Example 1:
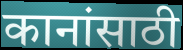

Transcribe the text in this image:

कानांसाठी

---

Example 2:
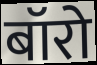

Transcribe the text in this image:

बॉरो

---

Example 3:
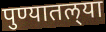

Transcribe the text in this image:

पुण्यातल्या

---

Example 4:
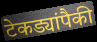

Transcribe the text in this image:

टेकड्यांपैकी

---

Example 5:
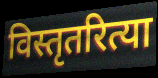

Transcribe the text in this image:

विस्तृतरित्या